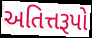
અતિત્તરૂપો